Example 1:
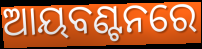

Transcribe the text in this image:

ଆୟବଣ୍ଟନରେ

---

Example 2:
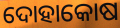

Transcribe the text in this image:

ଦୋହାକୋଷ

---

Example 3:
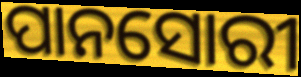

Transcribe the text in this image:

ପାନସୋରୀ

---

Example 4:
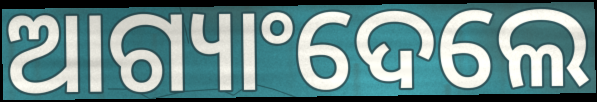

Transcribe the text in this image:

ଆଗ୍ୟାଂଦେଲେ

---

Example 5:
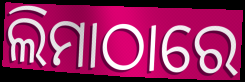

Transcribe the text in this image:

ଲିମାଠାରେ